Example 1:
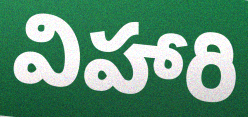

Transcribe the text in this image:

విహారి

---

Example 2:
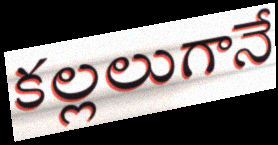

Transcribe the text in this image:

కల్లలుగానే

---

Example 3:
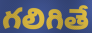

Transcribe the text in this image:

గలిగితే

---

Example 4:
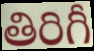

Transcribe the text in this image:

తిరిగీ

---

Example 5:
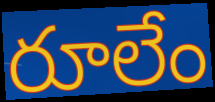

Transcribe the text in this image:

రూలేం